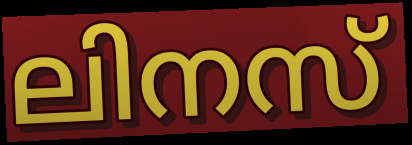
ലിനസ്